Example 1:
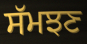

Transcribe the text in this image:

ਸੱਮਝਣ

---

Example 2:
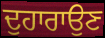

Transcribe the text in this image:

ਦੁਹਾਰਾਉਣ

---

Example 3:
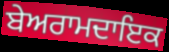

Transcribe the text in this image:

ਬੇਅਰਾਮਦਾਇਕ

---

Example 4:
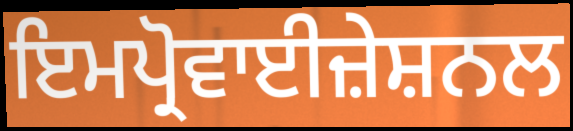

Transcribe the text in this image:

ਇਮਪ੍ਰੋਵਾਈਜ਼ੇਸ਼ਨਲ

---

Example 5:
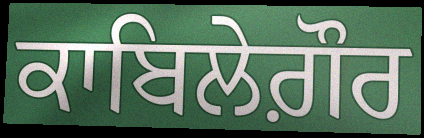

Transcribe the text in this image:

ਕਾਬਿਲੇਗ਼ੌਰ